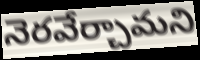
నెరవేర్చామని